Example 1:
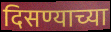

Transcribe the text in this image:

दिसण्याच्या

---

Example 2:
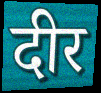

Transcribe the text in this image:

दीर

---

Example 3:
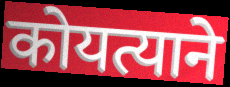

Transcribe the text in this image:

कोयत्याने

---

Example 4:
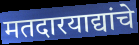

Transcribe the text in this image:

मतदारयाद्यांचे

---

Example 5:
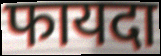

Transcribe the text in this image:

फायदा